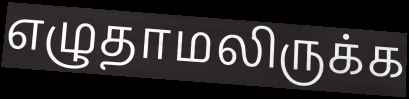
எழுதாமலிருக்க